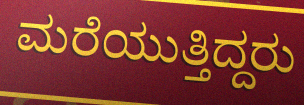
ಮರೆಯುತ್ತಿದ್ದರು